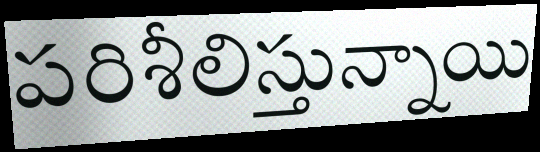
పరిశీలిస్తున్నాయి